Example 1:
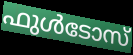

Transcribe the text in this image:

ഫുൾടോസ്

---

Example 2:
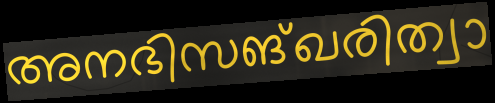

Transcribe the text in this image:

അനഭിസങ്ഖരിത്വാ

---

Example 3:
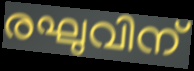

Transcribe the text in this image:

രഘുവിന്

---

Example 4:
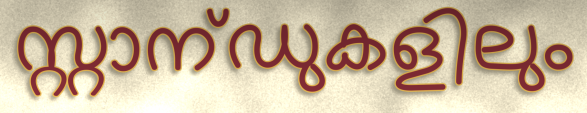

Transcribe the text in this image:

സ്റ്റാന്ഡുകളിലും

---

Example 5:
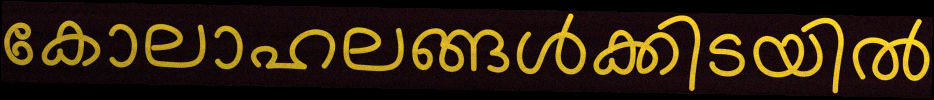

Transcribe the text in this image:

കോലാഹലങ്ങൾക്കിടയിൽ